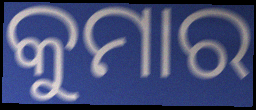
କୁମାର